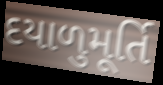
દયાળુમૂર્તિ